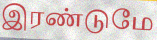
இரண்டுமே